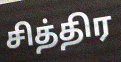
சித்திர